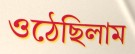
ওঠেছিলাম